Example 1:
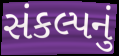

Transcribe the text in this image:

સંકલ્પનું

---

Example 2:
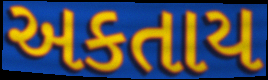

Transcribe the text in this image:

અકતાય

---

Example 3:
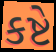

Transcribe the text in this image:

કષ્ટે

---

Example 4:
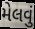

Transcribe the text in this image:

મેલવું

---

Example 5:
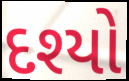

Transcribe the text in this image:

દશ્યો